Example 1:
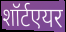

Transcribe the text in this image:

शॉर्टएयर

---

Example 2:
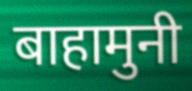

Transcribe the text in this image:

बाहामुनी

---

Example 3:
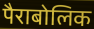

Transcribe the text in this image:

पैराबोलिक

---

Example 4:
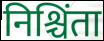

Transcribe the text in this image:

निश्चिंता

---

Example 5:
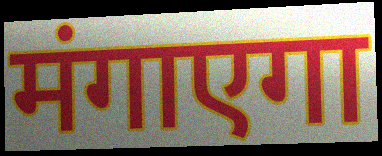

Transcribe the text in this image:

मंगाएगा